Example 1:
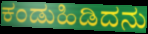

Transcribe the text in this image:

ಕಂಡುಹಿಡಿದನು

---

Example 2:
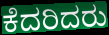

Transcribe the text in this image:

ಕೆದರಿದರು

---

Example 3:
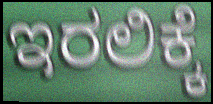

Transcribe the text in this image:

ಇರಲಿಕ್ಕೆ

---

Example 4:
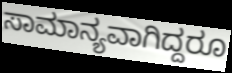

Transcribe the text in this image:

ಸಾಮಾನ್ಯವಾಗಿದ್ದರೂ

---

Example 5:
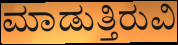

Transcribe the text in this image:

ಮಾಡುತ್ತಿರುವಿ